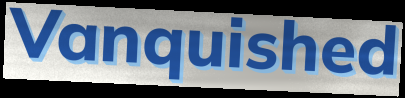
Vanquished